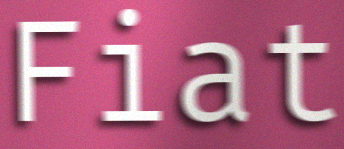
Fiat